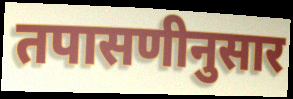
तपासणीनुसार